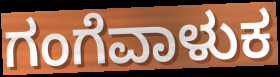
ಗಂಗೆವಾಳುಕ